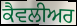
ਕੈਵਲੀਅਰ